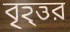
বৃহ্ত্তর